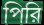
পিরি